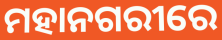
ମହାନଗରୀରେ